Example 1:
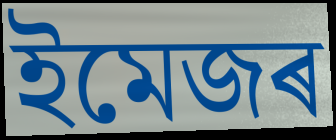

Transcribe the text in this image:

ইমেজৰ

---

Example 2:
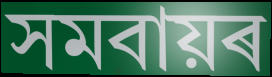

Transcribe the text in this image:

সমবায়ৰ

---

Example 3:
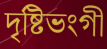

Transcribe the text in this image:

দৃষ্টিভংগী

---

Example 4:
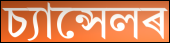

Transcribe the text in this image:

চ্যান্সেলৰ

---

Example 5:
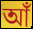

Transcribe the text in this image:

আঁ